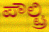
ಪೌಲ್ಟ್ರಿ